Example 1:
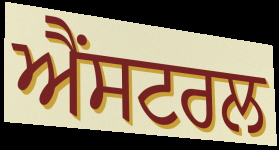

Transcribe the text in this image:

ਐਂਸਟਰਲ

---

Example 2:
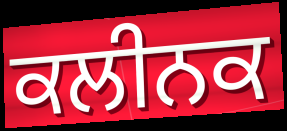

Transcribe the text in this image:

ਕਲੀਨਕ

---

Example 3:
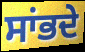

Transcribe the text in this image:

ਸਾਂਭਦੇ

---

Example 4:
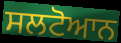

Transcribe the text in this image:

ਸਲਟੋਆਨ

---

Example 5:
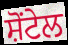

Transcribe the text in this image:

ਸ਼ੋਂਟੇਲ